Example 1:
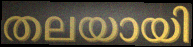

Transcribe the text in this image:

തലയായി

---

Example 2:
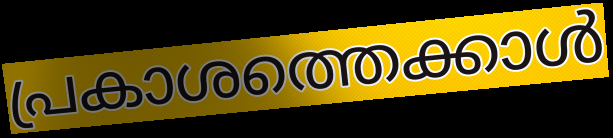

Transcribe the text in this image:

പ്രകാശത്തെക്കാൾ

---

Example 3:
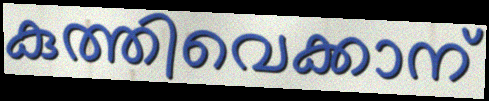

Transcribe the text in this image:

കുത്തിവെക്കാന്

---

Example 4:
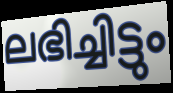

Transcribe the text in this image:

ലഭിച്ചിട്ടും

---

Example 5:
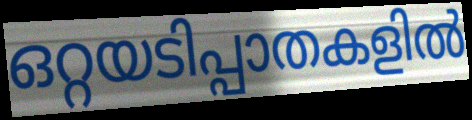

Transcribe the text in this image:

ഒറ്റയടിപ്പാതകളിൽ